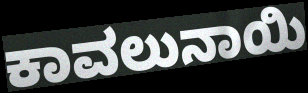
ಕಾವಲುನಾಯಿ